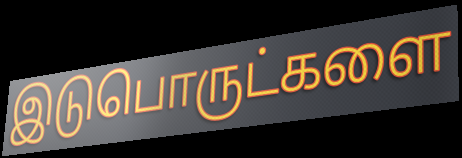
இடுபொருட்களை